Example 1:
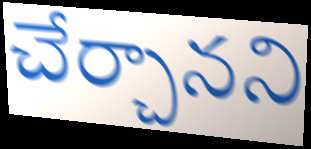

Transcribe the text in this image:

చేర్చానని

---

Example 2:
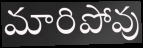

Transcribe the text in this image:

మారిపోవు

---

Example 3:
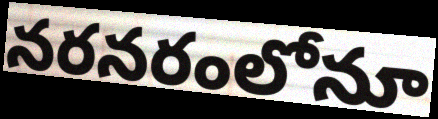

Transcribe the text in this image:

నరనరంలోనూ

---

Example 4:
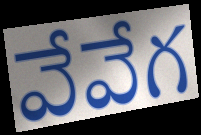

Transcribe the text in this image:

వేవేగ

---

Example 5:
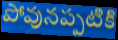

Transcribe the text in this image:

పోవునప్పటికి